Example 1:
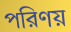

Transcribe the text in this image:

পরিণয়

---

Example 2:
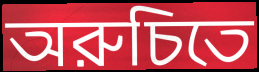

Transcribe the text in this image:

অরুচিতে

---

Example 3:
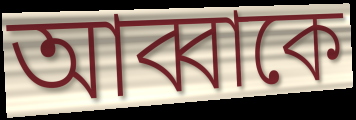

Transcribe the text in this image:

আব্বাকে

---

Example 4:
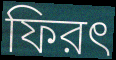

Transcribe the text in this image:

ফিরৎ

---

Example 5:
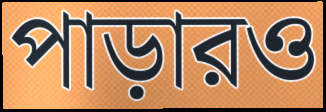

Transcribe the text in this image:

পাড়ারও